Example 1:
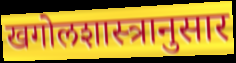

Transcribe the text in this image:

खगोलशास्त्रानुसार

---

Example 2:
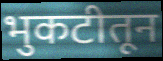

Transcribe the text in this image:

भुकटीतून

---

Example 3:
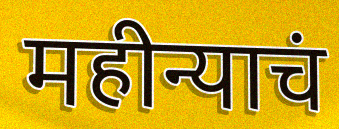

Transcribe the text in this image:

महीन्याचं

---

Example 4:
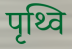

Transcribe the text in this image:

पृथ्वि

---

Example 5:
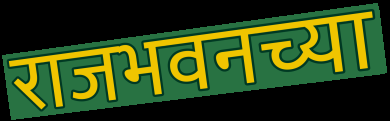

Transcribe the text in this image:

राजभवनच्या